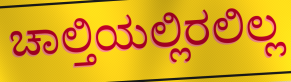
ಚಾಲ್ತಿಯಲ್ಲಿರಲಿಲ್ಲ